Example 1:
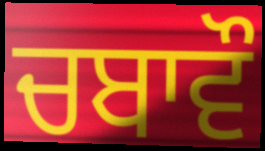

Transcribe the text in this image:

ਚਬਾਵੌ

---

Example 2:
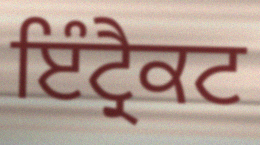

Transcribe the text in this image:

ਇੰਟ੍ਰੈਕਟ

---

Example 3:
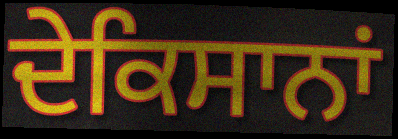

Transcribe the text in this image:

ਦੇਕਿਸਾਨਾਂ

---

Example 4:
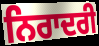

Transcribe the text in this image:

ਨਿਰਾਦਰੀ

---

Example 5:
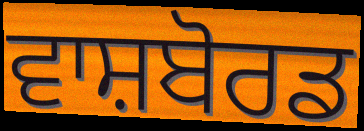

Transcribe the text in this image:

ਵਾਸ਼ਬੋਰਡ